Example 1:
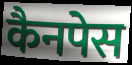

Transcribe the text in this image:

कैनपेस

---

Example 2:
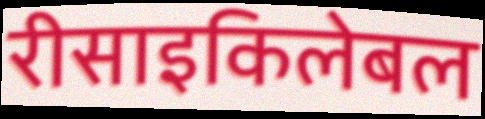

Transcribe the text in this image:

रीसाइकिलेबल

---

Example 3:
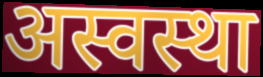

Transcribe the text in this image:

अस्वस्था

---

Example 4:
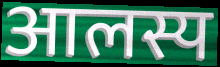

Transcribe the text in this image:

आलस्‍य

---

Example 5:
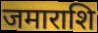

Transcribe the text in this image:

जमाराशि